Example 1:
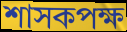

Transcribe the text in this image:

শাসকপক্ষ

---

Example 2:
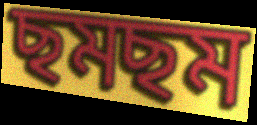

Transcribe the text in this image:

ছমছম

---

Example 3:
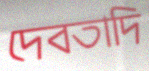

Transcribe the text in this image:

দেবতাদি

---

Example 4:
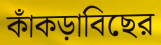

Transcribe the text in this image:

কাঁকড়াবিছের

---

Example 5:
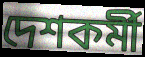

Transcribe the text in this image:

দেশকর্মী